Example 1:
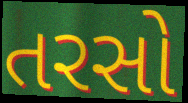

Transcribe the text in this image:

તરસો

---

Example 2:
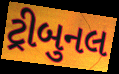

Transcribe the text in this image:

ટ્રીબુનલ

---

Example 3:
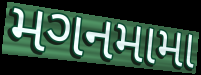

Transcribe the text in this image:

મગનમામા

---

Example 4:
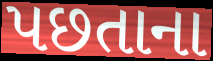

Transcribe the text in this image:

પછતાના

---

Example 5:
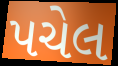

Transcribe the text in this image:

પચેલ